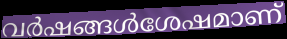
വർഷങ്ങൾശേഷമാണ്